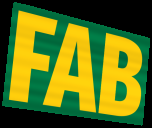
FAB